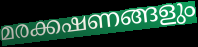
മരക്കഷണങ്ങളും